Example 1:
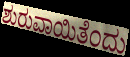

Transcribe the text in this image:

ಶುರುವಾಯಿತೆಂದು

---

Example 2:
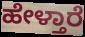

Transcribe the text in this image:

ಹೇಳ್ತಾರೆ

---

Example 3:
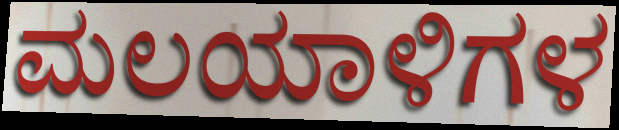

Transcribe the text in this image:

ಮಲಯಾಳಿಗಳ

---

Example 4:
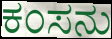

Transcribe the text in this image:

ಕಂಸನು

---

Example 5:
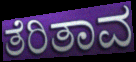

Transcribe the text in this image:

ತೆರಿತಾವ